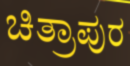
ಚಿತ್ರಾಪುರ